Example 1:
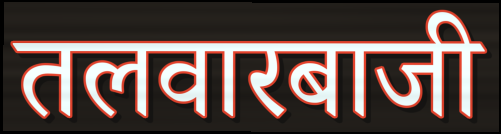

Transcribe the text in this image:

तलवारबाजी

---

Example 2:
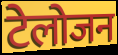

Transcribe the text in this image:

टेलोजन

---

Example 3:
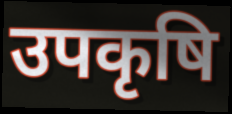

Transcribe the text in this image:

उपकृषि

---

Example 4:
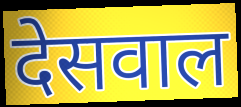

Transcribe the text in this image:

देसवाल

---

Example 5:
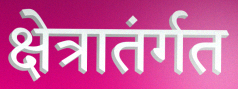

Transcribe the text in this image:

क्षेत्रातंर्गत